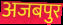
अजबपुर